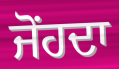
ਜੋਂਹਦਾ